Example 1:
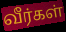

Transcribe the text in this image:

வீர்கள்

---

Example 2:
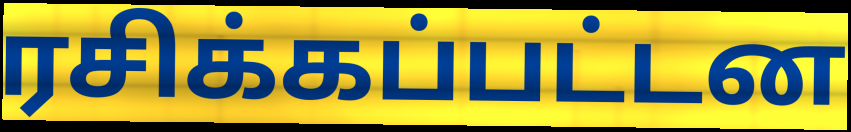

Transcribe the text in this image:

ரசிக்கப்பட்டன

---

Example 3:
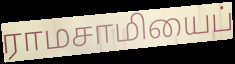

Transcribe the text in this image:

ராமசாமியைப்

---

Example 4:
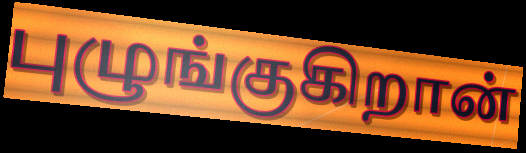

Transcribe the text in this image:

புழுங்குகிறான்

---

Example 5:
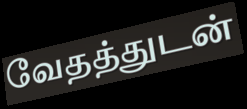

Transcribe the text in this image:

வேதத்துடன்